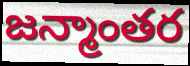
జన్మాంతర